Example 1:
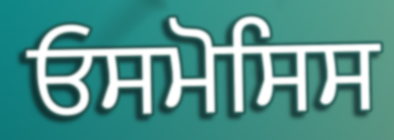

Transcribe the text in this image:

ਓਸਮੋਸਿਸ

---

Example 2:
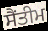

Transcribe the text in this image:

ਸੈਂਤੀਮ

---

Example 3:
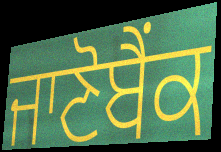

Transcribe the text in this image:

ਜਾਣੋਬੈਂਕ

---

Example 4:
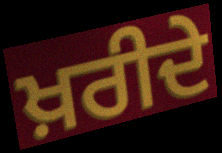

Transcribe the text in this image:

ਖ਼ਰੀਦੇ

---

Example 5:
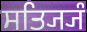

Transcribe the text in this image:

ਸਤ੍ਯ੍ਯਿੰ